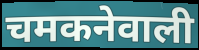
चमकनेवाली